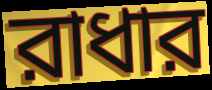
রাধার